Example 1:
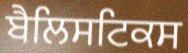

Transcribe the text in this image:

ਬੈਲਿਸਟਿਕਸ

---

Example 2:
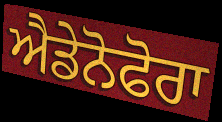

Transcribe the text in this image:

ਐਡੇਨੋਫੋਰਾ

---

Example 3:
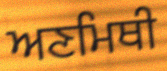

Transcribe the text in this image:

ਅਣਮਿਥੀ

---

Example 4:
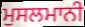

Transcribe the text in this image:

ਮੁਸਲਮਾਨੀ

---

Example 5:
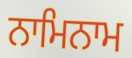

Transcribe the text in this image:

ਨਾਮਿਨਾਮ